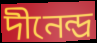
দীনেন্দ্র